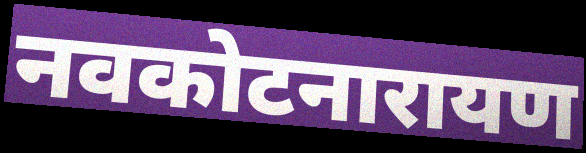
नवकोटनारायण